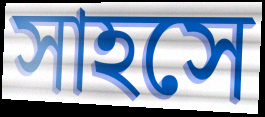
সাহসে